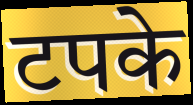
टपके